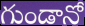
గుండానో